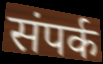
संपर्क